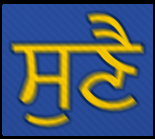
ਸੁਣੈ